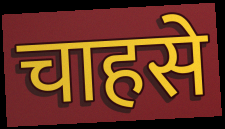
चाहसे